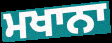
ਮਖਾਨਾ